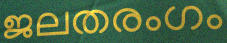
ജലതരംഗം